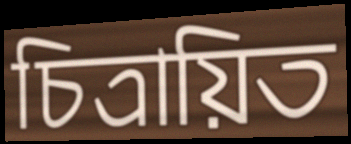
চিত্ৰায়িত